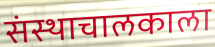
संस्थाचालकाला